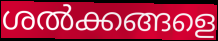
ശൽക്കങ്ങളെ